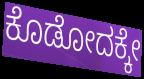
ಕೊಡೋದಕ್ಕೇ